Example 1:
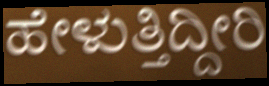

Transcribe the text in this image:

ಹೇಳುತ್ತಿದ್ದೀರಿ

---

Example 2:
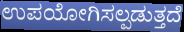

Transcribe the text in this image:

ಉಪಯೋಗಿಸಲ್ಪಡುತ್ತದೆ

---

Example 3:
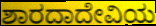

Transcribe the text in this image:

ಶಾರದಾದೇವಿಯ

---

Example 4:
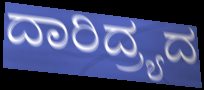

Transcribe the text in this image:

ದಾರಿದ್ರ್ಯದ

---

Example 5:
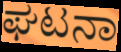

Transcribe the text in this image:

ಘಟನಾ